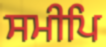
ਸਮੀਪਿ